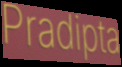
Pradipta